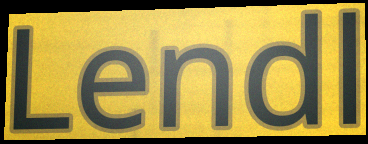
Lendl